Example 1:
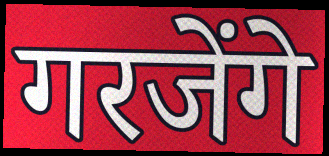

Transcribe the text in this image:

गरजेंगे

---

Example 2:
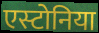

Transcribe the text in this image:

एस्‍टोनिया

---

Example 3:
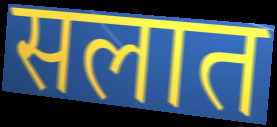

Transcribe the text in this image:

सलात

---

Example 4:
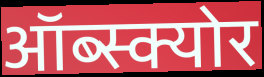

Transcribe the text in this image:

ऑब्स्क्योर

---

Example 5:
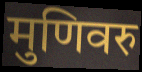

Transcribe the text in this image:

मुणिवरु